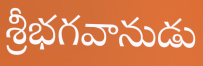
శ్రీభగవానుడు